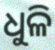
ଧୁଳି